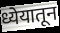
ध्येयातून